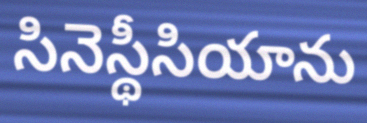
సినెస్థీసియాను